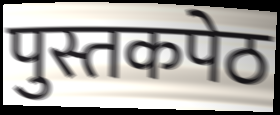
पुस्तकपेठ